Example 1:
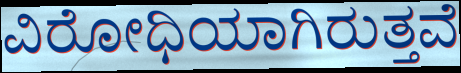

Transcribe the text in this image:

ವಿರೋಧಿಯಾಗಿರುತ್ತವೆ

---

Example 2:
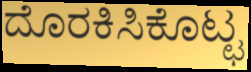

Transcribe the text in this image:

ದೊರಕಿಸಿಕೊಟ್ಟ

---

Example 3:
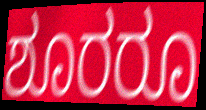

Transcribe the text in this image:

ಶೂರರೂ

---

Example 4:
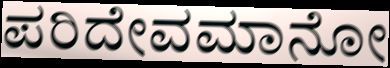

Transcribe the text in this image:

ಪರಿದೇವಮಾನೋ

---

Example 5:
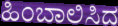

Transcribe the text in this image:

ಹಿಂಬಾಲಿಸಿದ